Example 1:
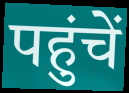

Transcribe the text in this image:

पहुंचें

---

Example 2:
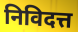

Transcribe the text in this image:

निविदत्त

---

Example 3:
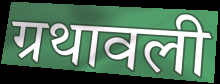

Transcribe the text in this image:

ग्रथावली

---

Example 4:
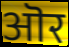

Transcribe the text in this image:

ऒर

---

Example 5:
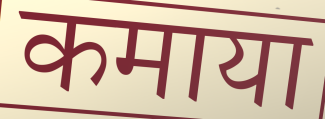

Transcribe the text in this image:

कमाया